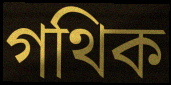
গথিক